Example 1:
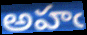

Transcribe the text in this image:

అహఁ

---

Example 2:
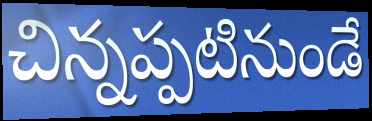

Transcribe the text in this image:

చిన్నప్పటినుండే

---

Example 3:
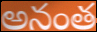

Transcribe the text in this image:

అనంత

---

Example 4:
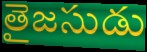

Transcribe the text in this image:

తైజసుడు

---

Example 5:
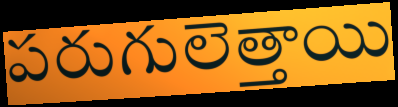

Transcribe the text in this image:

పరుగులెత్తాయి